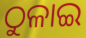
ଠୁଳାଇ